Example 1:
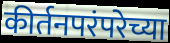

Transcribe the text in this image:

कीर्तनपरंपरेच्या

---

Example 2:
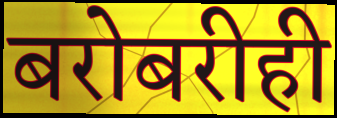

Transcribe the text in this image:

बरोबरीही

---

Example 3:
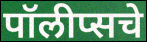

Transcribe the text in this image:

पॉलीप्सचे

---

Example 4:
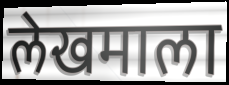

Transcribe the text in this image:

लेखमाला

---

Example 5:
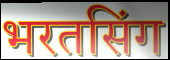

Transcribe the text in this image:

भरतसिंग